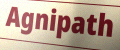
Agnipath